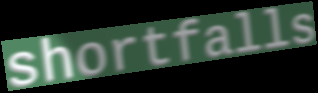
shortfalls